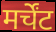
मर्चेंट